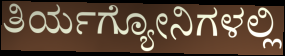
ತಿರ್ಯಗ್ಯೋನಿಗಳಲ್ಲಿ